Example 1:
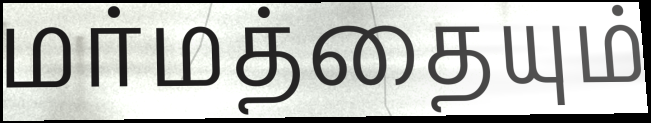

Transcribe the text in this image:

மர்மத்தையும்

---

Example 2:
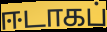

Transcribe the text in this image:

ஈடாகப்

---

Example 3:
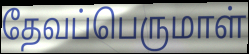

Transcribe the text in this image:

தேவப்பெருமாள்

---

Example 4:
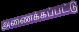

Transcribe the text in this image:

அணைக்கப்பட்டு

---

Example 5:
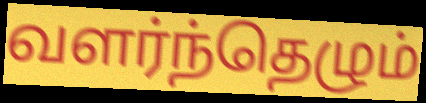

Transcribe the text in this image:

வளர்ந்தெழும்